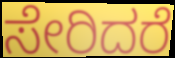
ಸೇರಿದರೆ